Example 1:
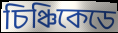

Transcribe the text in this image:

চিঞ্চিকেডে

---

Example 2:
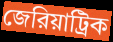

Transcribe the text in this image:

জেরিয়াট্রিক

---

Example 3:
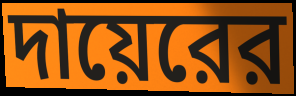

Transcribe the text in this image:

দায়েরের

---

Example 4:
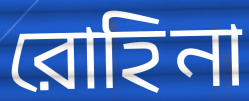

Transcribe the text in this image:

রোহিনা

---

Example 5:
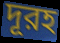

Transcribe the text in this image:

দূরহ